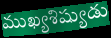
ముఖ్యశిష్యుడు